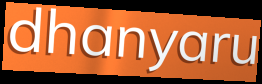
dhanyaru